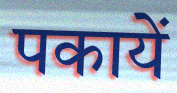
पकायें